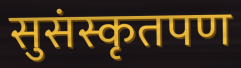
सुसंस्कृतपण